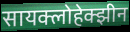
सायक्लोहेक्झीन